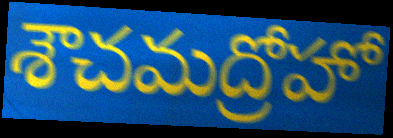
శౌచమద్రోహో